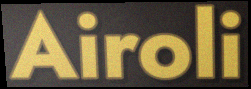
Airoli